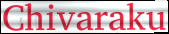
Chivaraku